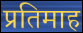
प्रतिमाह